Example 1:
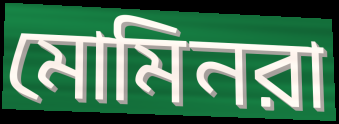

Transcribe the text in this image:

মোমিনরা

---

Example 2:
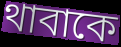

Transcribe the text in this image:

থাবাকে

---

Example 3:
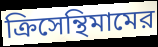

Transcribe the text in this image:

ক্রিসেন্থিমামের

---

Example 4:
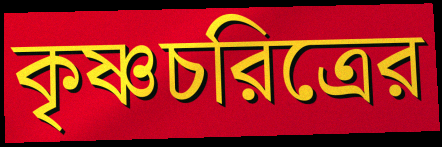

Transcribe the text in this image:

কৃষ্ণচরিত্রের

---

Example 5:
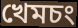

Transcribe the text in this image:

খেমচং